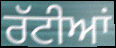
ਰੱਟੀਆਂ